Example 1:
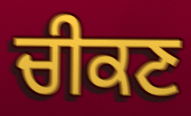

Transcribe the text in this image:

ਚੀਕਣ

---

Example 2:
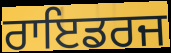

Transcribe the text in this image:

ਰਾਇਡਰਜ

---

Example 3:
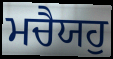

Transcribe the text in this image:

ਮਚੈਯਹੁ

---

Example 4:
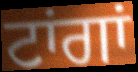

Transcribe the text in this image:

ਟਾਂਗਾਂ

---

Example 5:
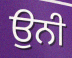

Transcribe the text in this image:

ਉਨੀ